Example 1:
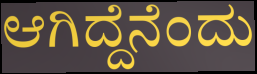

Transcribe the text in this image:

ಆಗಿದ್ದೆನೆಂದು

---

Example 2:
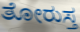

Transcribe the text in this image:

ತೋರುಸ್ತ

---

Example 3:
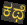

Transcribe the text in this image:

ಕಥೆ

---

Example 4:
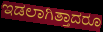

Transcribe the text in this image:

ಇಡಲಾಗಿತ್ತಾದರೂ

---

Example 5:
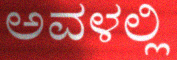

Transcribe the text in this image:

ಅವಳಲ್ಲಿ